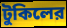
টুকিলের